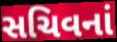
સચિવનાં